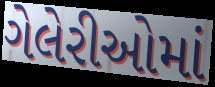
ગેલેરીઓમાં